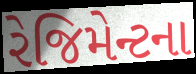
રેજિમેન્ટના